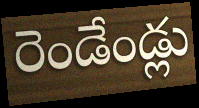
రెండేండ్లు